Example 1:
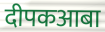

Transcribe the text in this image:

दीपकआबा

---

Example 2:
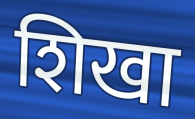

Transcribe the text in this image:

शिखा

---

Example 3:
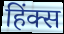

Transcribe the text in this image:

हिंक्स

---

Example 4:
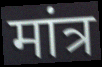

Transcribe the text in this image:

मांत्र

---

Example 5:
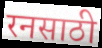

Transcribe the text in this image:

रनसाठी